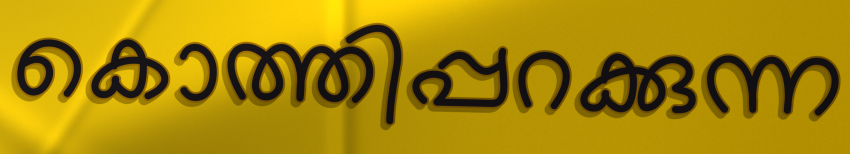
കൊത്തിപ്പറക്കുന്ന